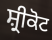
ਸ਼੍ਰੀਕੋਟ